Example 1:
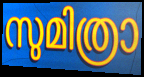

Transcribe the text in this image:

സുമിത്രാ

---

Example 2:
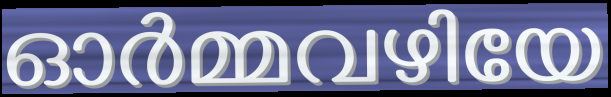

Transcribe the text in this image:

ഓർമ്മവഴിയേ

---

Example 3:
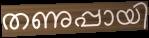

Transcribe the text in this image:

തണുപ്പായി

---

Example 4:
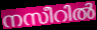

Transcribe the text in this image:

നസീറിൽ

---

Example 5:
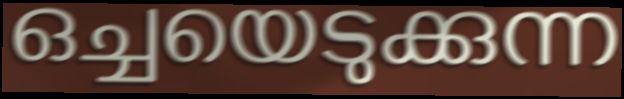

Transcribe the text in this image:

ഒച്ചയെടുക്കുന്ന